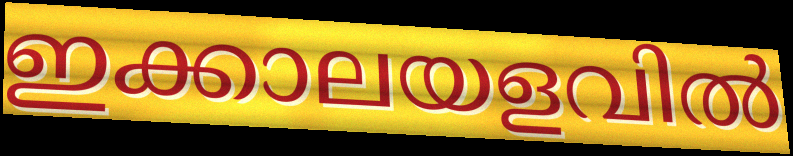
ഇക്കാലയളവിൽ